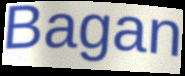
Bagan